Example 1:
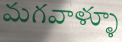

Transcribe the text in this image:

మగవాళ్ళూ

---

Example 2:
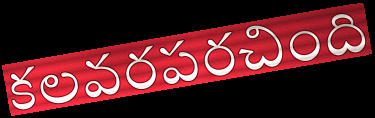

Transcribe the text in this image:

కలవరపరచింది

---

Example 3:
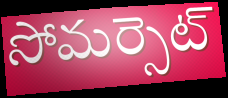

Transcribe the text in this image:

సోమర్సెట్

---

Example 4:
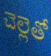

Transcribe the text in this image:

చెల్లెతో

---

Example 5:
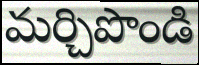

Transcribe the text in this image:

మర్చిపొండి